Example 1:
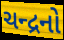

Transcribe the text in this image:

ચન્દ્રનો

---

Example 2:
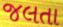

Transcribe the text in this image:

જલતા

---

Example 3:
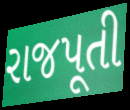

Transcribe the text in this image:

રાજપૂતી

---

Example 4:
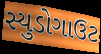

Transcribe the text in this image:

સ્યુડોગાઉટ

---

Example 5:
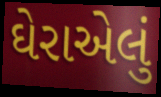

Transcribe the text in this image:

ઘેરાએલું